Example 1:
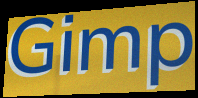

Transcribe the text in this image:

Gimp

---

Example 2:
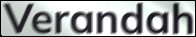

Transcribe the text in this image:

Verandah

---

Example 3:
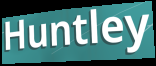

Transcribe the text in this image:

Huntley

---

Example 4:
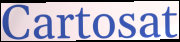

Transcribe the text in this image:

Cartosat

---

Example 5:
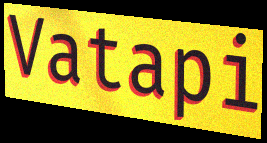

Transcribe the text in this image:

Vatapi